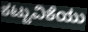
ಕಟ್ಟುವಿಕೆಯು